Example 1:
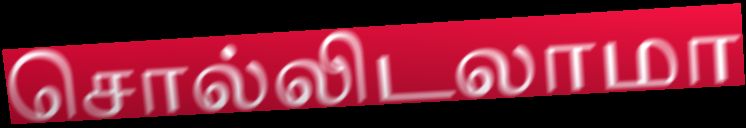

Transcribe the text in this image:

சொல்லிடலாமா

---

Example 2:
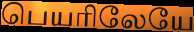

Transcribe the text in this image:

பெயரிலேயே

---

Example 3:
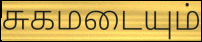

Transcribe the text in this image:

சுகமடையும்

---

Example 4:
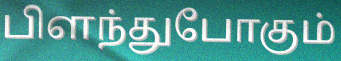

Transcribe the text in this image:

பிளந்துபோகும்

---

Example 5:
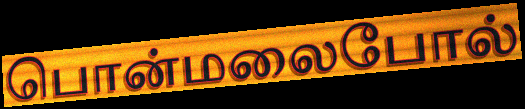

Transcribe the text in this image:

பொன்மலைபோல்